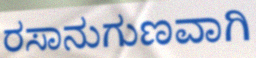
ರಸಾನುಗುಣವಾಗಿ